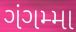
ગંગમ્મા